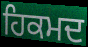
ਹਿਕਮਦ